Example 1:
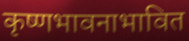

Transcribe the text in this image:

कृष्णभावनाभावित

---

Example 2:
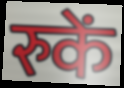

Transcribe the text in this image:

रुकें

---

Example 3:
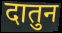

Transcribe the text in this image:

दातुन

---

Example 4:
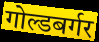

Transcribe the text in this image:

गोल्डबर्गर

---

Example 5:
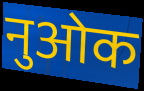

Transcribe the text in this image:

नुओक